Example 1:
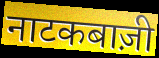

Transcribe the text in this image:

नाटकबाज़ी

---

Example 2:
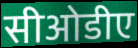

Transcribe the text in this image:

सीओडीए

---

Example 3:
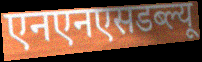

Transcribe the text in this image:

एनएनएसडब्ल्यू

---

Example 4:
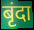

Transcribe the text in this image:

बृंदा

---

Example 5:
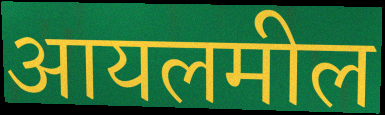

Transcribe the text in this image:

आयलमील